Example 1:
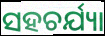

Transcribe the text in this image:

ସହଚର୍ଯ୍ୟା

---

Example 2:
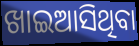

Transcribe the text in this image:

ଖାଇଆସିଥିବା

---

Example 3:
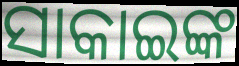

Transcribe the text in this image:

ସାକାଇଙ୍କ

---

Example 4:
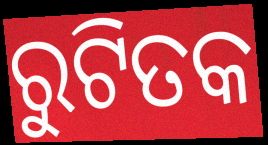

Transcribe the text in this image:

ରୁଟିତକ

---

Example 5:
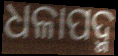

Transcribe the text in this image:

ଧଳାପଦ୍ମ